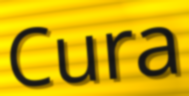
Cura